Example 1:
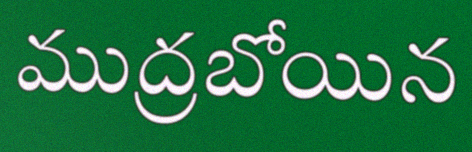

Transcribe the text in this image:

ముద్రబోయిన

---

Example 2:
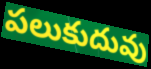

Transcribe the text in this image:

పలుకుదువు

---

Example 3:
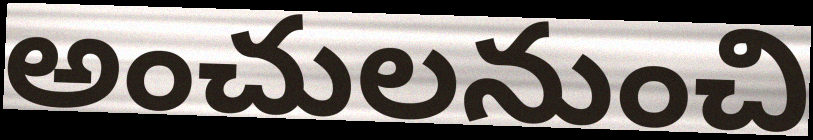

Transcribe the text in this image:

అంచులనుంచి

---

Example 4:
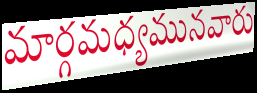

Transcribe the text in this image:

మార్గమధ్యమునవారు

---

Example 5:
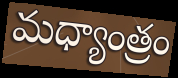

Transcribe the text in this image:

మధ్యాంత్రం